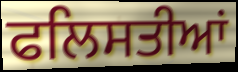
ਫਲਿਸਤੀਆਂ